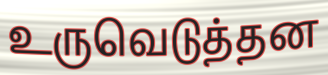
உருவெடுத்தன